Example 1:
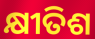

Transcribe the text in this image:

କ୍ଷୀତିଶ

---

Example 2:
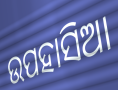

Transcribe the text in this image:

ଉପହାସିଆ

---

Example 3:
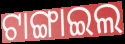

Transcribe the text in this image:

ଟାଙ୍ଗାଇଲ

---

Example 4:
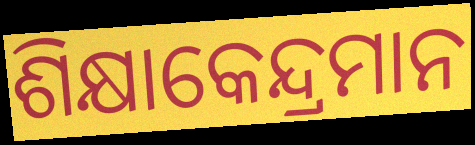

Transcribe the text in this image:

ଶିକ୍ଷାକେନ୍ଦ୍ରମାନ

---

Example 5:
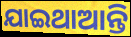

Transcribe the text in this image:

ଯାଇଥାଆନ୍ତି